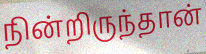
நின்றிருந்தான்